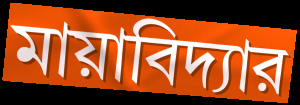
মায়াবিদ্যার